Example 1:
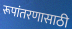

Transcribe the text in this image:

रूपांतरणासाठी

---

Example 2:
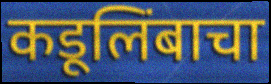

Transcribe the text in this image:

कडूलिंबाचा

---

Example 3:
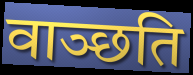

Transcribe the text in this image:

वाञ्छति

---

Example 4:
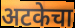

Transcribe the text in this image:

अटकेचा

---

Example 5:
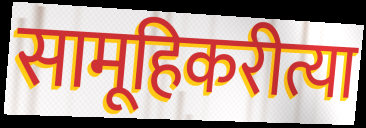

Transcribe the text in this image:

सामूहिकरीत्या